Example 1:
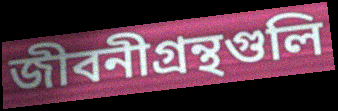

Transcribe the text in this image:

জীবনীগ্রন্থগুলি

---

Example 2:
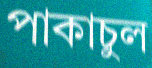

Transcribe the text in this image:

পাকাচুল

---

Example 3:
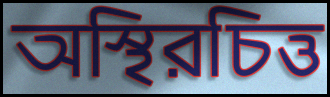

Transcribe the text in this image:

অস্থিরচিত্ত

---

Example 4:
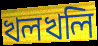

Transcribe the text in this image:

খলখলি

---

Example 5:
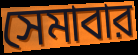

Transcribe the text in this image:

সেমাবার